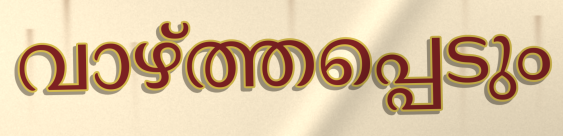
വാഴ്ത്തപ്പെടും